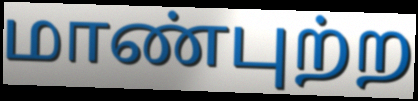
மாண்புற்ற